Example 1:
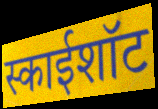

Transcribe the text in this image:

स्काईशॉट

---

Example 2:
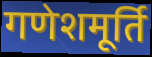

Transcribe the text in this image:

गणेशमूर्ति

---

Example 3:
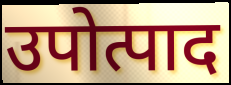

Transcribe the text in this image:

उपोत्पाद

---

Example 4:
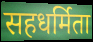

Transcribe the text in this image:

सहधर्मिता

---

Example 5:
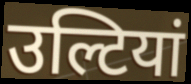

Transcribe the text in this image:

उल्टियां